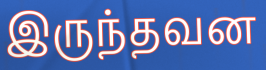
இருந்தவன